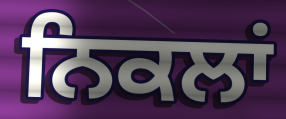
ਨਿਕਲਾਂ